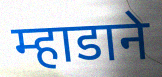
म्हाडाने